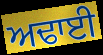
ਅਢਾਈ